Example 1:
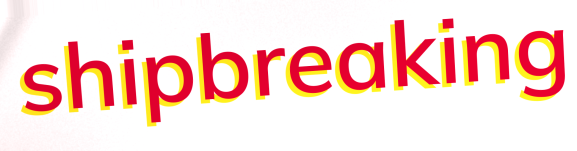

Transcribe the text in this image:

shipbreaking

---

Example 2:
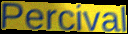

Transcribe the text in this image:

Percival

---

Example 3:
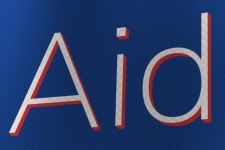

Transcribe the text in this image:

Aid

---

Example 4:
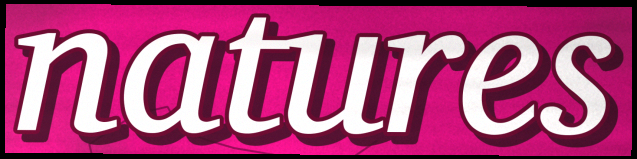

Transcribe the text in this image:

natures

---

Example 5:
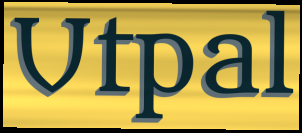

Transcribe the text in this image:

Utpal